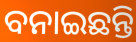
ବନାଇଛନ୍ତି